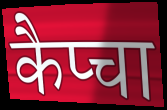
कैप्चा